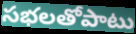
సభలతోపాటు